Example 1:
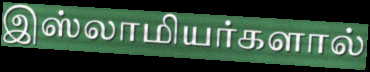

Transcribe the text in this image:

இஸ்லாமியர்களால்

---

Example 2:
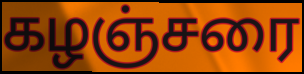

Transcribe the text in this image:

கழஞ்சரை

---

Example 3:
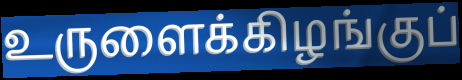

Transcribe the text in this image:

உருளைக்கிழங்குப்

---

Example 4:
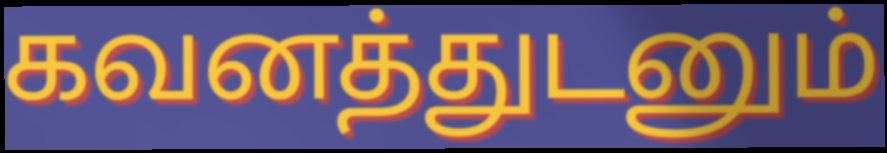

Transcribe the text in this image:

கவனத்துடனும்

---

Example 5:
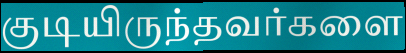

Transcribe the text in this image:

குடியிருந்தவர்களை